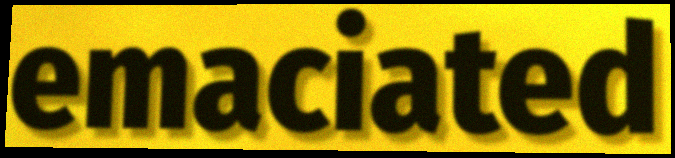
emaciated